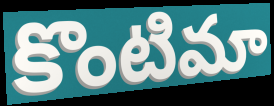
కొంటిమా